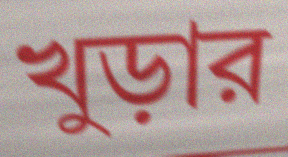
খুড়ার